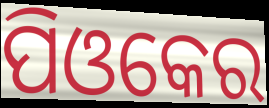
ପିଓକେର